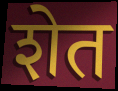
शेत